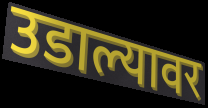
उडाल्यावर